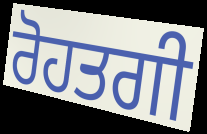
ਰੋਹਤਗੀ